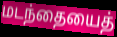
மடந்தையைத்